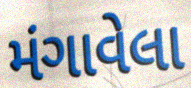
મંગાવેલા